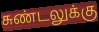
சுண்டலுக்கு